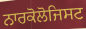
ਨਾਰਕੋਲੋਜਿਸਟ